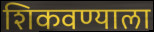
शिकवण्याला